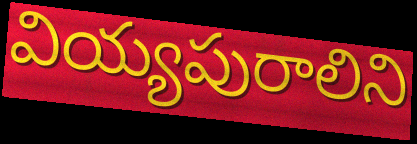
వియ్యపురాలిని